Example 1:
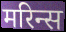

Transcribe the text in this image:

मरिन्स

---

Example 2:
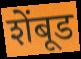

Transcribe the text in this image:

शेंबूड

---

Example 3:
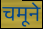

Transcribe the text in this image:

चमूने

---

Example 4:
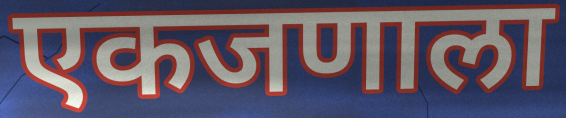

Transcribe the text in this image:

एकजणाला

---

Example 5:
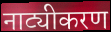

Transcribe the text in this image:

नाट्यीकरण